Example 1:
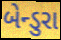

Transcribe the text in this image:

બેન્ડુરા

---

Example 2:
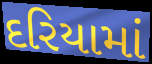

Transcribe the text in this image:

દરિયામાં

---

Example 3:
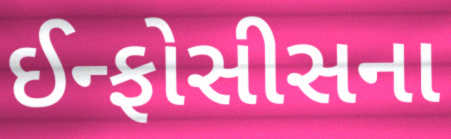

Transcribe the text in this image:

ઈન્ફોસીસના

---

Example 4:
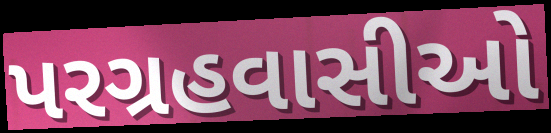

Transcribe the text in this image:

પરગ્રહવાસીઓ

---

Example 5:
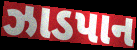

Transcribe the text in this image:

ઝાડપાન